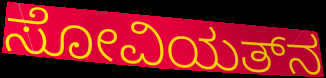
ಸೋವಿಯತ್‌ನ